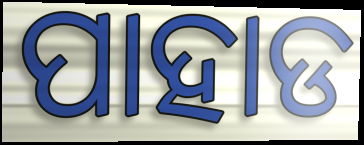
ପାହାଡ